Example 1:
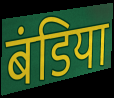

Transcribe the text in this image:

बंडिया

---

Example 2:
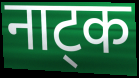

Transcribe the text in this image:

नाट्क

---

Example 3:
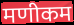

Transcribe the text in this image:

मणीकम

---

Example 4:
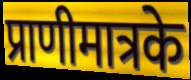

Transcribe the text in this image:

प्राणीमात्रके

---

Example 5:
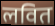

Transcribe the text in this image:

लवित